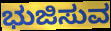
ಭುಜಿಸುವ